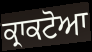
ਕ੍ਰਾਕਟੋਆ